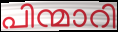
പിന്മാറി